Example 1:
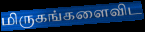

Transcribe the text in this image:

மிருகங்களைவிட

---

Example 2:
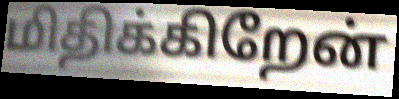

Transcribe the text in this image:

மிதிக்கிறேன்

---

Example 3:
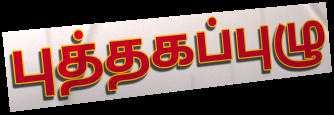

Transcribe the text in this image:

புத்தகப்புழு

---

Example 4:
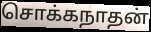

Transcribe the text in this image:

சொக்கநாதன்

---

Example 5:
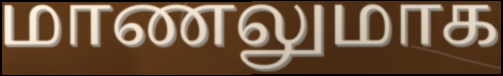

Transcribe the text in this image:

மாணலுமாக